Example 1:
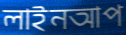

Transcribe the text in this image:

লাইনআপ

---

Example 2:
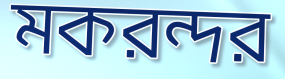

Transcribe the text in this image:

মকরন্দর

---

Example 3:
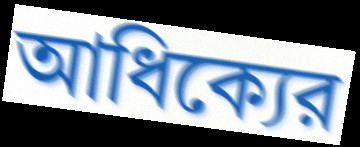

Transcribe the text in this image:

আধিক্যের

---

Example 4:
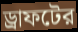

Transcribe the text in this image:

ড্রাফটের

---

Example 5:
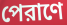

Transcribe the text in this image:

পেরাণে